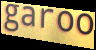
garoo